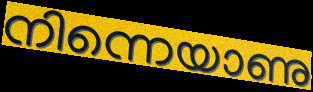
നിന്നെയാണു